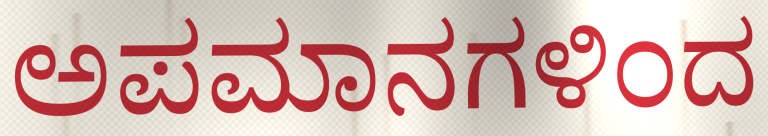
ಅಪಮಾನಗಳಿಂದ